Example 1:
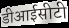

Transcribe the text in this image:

डीआईसीटी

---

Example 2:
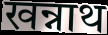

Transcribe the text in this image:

खन्नाथ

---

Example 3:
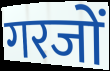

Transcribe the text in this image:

गरजों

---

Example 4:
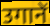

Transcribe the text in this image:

उगानें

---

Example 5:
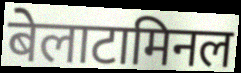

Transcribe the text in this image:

बेलाटामिनल